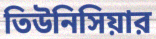
তিউনিসিয়ার